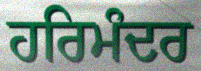
ਹਰਿਮੰਦਰ